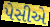
પેસીએ